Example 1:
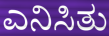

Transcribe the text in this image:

ಎನಿಸಿತು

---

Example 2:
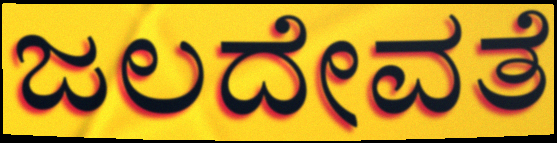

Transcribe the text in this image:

ಜಲದೇವತೆ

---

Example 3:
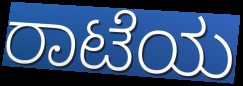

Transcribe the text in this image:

ರಾಟೆಯ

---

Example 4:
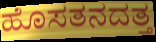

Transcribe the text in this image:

ಹೊಸತನದತ್ತ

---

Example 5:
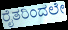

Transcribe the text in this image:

ರೈತರಿಂದಲೇ